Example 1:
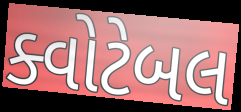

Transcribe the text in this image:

ક્વોટેબલ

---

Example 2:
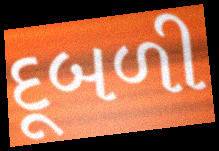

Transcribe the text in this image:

દૂબળી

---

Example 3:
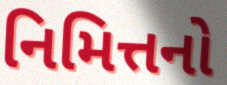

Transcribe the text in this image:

નિમિત્તનો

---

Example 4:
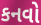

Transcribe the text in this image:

કનવો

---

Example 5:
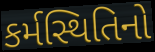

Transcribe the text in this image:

કર્મસ્થિતિનો